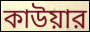
কাউয়ার